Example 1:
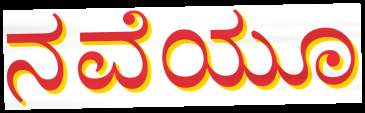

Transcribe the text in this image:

ನವೆಯೂ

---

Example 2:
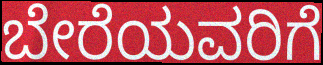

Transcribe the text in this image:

ಬೇರೆಯವರಿಗೆ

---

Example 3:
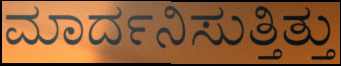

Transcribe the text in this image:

ಮಾರ್ದನಿಸುತ್ತಿತ್ತು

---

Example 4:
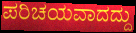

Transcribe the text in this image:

ಪರಿಚಯವಾದದ್ದು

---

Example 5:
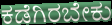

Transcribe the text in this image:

ಕಡೆಗಿರಬೇಕು